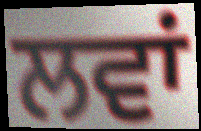
ਲਵਾਂ